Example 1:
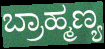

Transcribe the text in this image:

ಬ್ರಾಹ್ಮಣ್ಯ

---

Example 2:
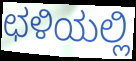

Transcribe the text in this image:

ಛಳಿಯಲ್ಲಿ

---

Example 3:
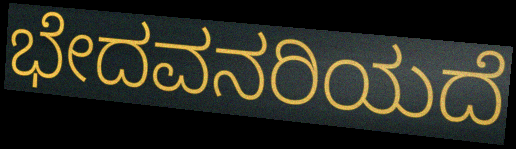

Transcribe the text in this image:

ಭೇದವನರಿಯದೆ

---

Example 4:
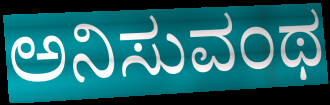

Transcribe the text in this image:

ಅನಿಸುವಂಥ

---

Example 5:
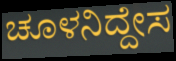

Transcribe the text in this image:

ಚೂಳನಿದ್ದೇಸ